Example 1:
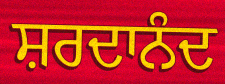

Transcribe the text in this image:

ਸ਼ਰਦਾਨੰਦ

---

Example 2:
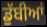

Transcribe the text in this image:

ਡੁੱਬੀਆਂ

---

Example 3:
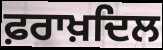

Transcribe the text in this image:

ਫ਼ਰਾਖ਼ਦਿਲ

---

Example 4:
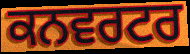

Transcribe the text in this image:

ਕਨਵਰਟਰ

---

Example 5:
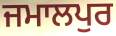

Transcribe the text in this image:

ਜਮਾਲਪੁਰ